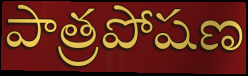
పాత్రపోషణ